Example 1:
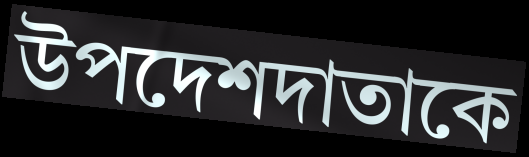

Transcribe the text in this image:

উপদেশদাতাকে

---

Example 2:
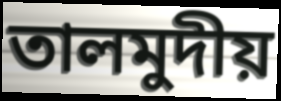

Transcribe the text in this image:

তালমুদীয়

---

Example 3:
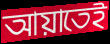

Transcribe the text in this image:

আয়াতেই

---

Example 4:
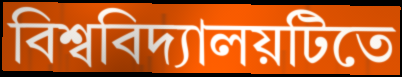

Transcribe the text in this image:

বিশ্ববিদ্যালয়টিতে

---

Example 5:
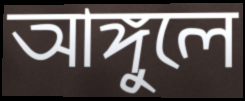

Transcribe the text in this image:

আঙ্গুলে